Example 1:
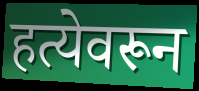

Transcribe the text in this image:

हत्येवरून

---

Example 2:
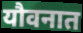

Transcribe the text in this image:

यौवनात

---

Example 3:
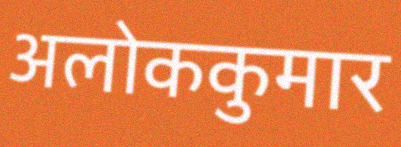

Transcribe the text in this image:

अलोककुमार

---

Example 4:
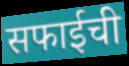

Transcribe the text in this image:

सफाईची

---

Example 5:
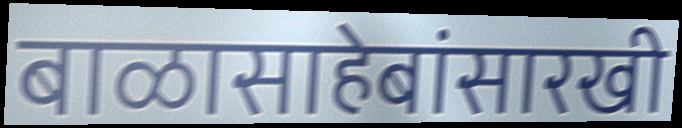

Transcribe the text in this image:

बाळासाहेबांसारखी